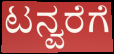
ಟನ್ವರೆಗೆ